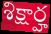
శిక్షార్హ